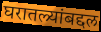
घरातल्यांबद्दल